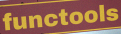
functools